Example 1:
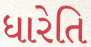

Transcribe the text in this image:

ધારેતિ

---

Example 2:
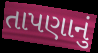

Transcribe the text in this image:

તાપણાનું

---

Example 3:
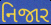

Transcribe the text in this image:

નિજાર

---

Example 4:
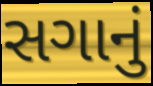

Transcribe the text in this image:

સગાનું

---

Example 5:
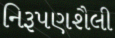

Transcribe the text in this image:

નિરૂપણશૈલી